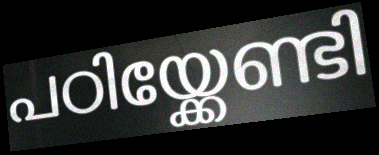
പഠിയ്ക്കേണ്ടി